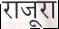
राजूरा